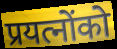
प्रयत्नोंको